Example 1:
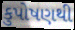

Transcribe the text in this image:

કુપોષણથી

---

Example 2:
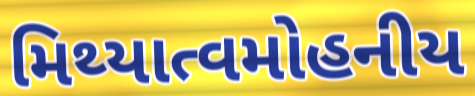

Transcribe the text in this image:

મિથ્યાત્વમોહનીય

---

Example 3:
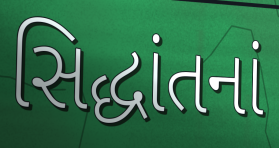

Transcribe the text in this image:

સિદ્ધાંતનાં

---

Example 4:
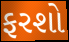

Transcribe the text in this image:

ફરશો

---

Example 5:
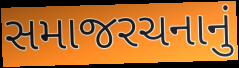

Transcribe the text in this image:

સમાજરચનાનું